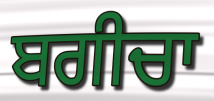
ਬਗੀਚਾ